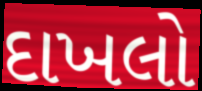
દાખલો